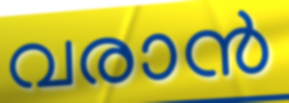
വരാൻ